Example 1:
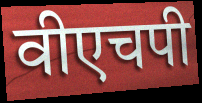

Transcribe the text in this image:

वीएचपी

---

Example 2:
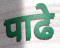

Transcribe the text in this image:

पाढे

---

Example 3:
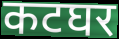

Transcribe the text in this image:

कटघर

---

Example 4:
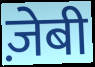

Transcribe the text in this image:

ज़ेबी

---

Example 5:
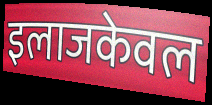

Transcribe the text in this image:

इलाजकेवल